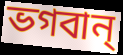
ভগবান্